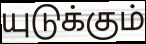
யுடுக்கும்